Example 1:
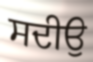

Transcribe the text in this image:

ਸਦੀਉ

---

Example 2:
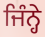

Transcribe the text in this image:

ਜਿੰਨ੍ਹੇ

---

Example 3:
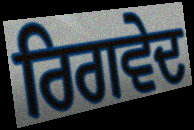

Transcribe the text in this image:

ਰਿਗਵੇਦ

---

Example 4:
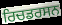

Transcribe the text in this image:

ਰਿਚਡਰਸਨ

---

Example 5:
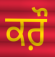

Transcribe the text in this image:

ਕਰ਼ੌ